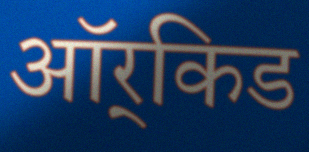
ऑर्किड